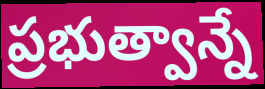
ప్రభుత్వాన్నే